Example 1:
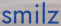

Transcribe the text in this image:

smilz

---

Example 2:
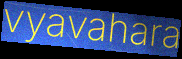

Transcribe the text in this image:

vyavahara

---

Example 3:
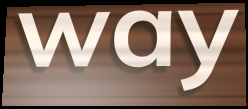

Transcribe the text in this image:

way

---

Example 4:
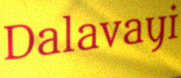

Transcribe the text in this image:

Dalavayi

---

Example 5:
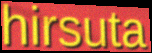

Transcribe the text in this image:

hirsuta